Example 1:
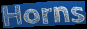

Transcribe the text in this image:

Horns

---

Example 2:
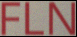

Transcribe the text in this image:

FLN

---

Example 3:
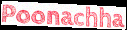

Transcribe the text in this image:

Poonachha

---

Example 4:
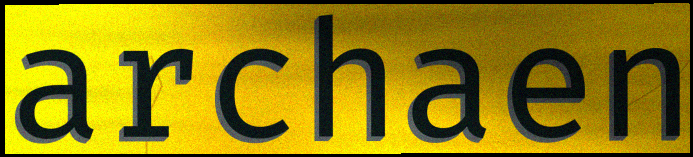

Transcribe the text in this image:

archaen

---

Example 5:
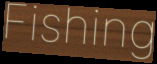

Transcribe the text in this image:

Fishing